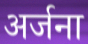
अर्जना